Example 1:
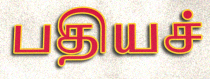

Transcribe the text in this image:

பதியச்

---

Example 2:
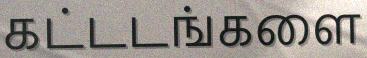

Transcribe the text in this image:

கட்டடங்களை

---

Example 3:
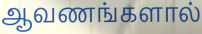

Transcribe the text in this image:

ஆவணங்களால்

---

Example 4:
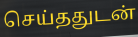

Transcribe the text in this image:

செய்ததுடன்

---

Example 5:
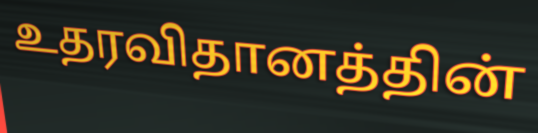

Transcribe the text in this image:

உதரவிதானத்தின்